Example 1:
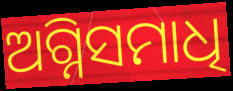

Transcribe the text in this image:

ଅଗ୍ନିସମାଧି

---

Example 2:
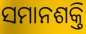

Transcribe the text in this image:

ସମାନଶକ୍ତି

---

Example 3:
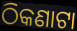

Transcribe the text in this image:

ଠିକଣାଟା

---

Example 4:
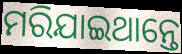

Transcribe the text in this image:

ମରିଯାଇଥାନ୍ତେ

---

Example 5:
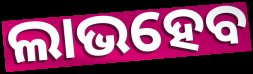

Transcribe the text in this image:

ଲାଭହେବ